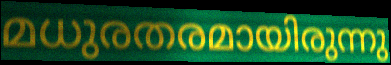
മധുരതരമായിരുന്നു